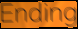
Ending